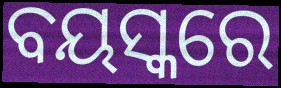
ବୟସ୍କରେ